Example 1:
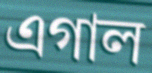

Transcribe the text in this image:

এগাল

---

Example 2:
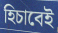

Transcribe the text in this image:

হিচাবেই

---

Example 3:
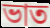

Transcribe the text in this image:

ভাত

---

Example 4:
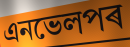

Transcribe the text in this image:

এনভেলপৰ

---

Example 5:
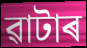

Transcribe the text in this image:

ৱাটাৰ